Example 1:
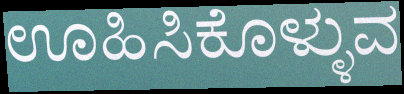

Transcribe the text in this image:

ಊಹಿಸಿಕೊಳ್ಳುವ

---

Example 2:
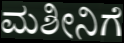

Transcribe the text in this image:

ಮಶೀನಿಗೆ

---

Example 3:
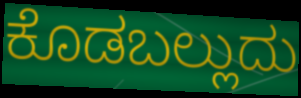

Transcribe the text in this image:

ಕೊಡಬಲ್ಲುದು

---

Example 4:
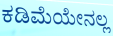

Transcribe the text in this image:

ಕಡಿಮೆಯೇನಲ್ಲ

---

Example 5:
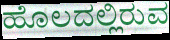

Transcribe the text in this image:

ಹೊಲದಲ್ಲಿರುವ